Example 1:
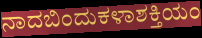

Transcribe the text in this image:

ನಾದಬಿಂದುಕಳಾಶಕ್ತಿಯಂ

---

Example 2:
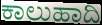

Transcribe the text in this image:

ಕಾಲುಹಾದಿ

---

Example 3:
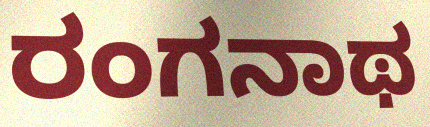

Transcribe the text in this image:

ರಂಗನಾಥ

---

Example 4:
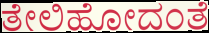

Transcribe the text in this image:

ತೇಲಿಹೋದಂತೆ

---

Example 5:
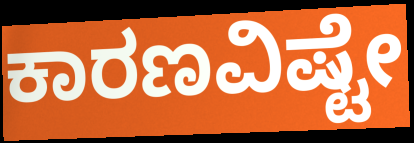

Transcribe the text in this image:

ಕಾರಣವಿಷ್ಟೇ